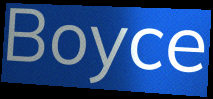
Boyce